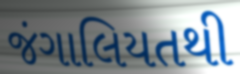
જંગાલિયતથી